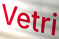
Vetri